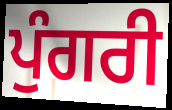
ਪੁੰਗਰੀ